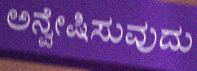
ಅನ್ವೇಷಿಸುವುದು